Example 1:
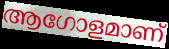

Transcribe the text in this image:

ആഗോളമാണ്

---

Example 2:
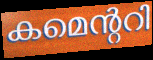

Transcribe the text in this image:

കമെന്ററി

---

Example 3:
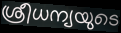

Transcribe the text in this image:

ശ്രീധന്യയുടെ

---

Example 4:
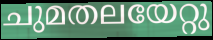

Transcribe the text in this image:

ചുമതലയേറ്റു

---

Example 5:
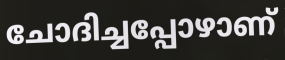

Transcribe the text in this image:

ചോദിച്ചപ്പോഴാണ്